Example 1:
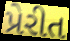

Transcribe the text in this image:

પ્રેરીત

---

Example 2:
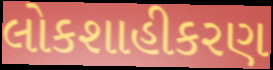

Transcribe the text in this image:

લોકશાહીકરણ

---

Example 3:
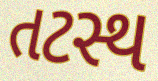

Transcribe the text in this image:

તટસ્થ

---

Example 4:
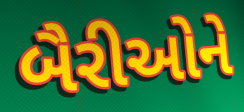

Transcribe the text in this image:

બૈરીઓને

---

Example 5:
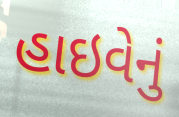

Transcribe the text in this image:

હાઇવેનું